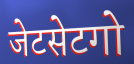
जेटसेटगो